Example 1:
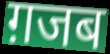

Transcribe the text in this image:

ग़जब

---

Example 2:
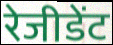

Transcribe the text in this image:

रेजीडेंट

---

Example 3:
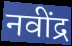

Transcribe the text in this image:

नवींद्र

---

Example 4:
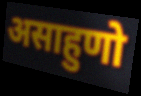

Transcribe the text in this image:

असाहुणो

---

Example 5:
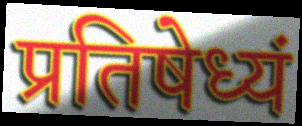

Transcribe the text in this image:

प्रतिषेध्यं